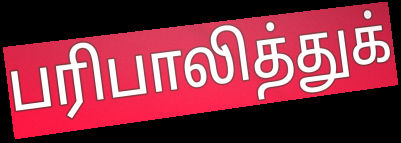
பரிபாலித்துக்